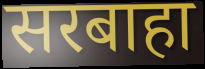
सरबाहा